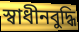
স্বাধীনবুদ্ধি